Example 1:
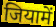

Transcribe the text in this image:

जियामें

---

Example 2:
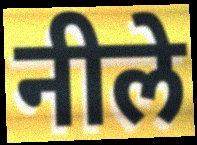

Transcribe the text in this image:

नीले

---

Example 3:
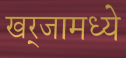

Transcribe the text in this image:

खर्जामध्ये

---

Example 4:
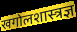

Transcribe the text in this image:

खगोलशास्त्रज्ञ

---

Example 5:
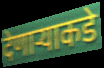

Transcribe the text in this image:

देणाऱ्याकडे